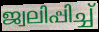
ജ്വലിപ്പിച്ച്